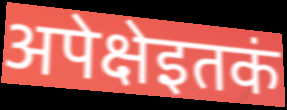
अपेक्षेइतकं